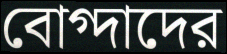
বোগ্দাদের